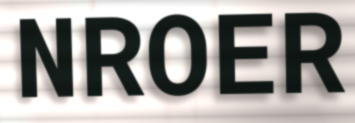
NROER